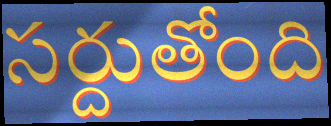
సర్దుతోంది